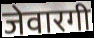
जेवारगी